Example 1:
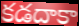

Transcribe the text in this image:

కడదాకా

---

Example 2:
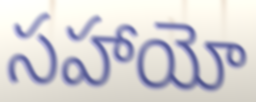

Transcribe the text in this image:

సహాయో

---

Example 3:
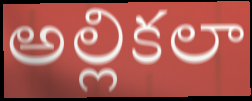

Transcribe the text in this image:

అల్లికలా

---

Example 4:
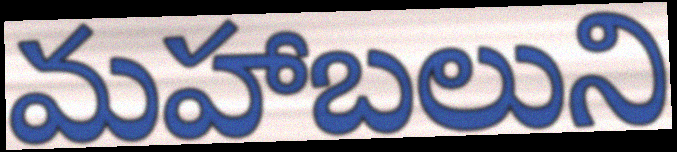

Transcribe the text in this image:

మహాబలుని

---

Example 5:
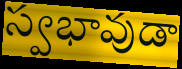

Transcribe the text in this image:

స్వభావుడా